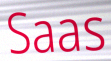
Saas